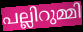
പല്ലിറുമ്മി